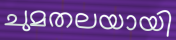
ചുമതലയായി